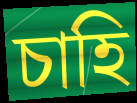
চাহি